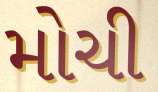
મોચી